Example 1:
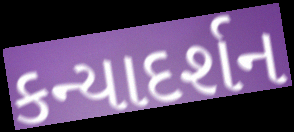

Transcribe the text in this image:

કન્યાદર્શન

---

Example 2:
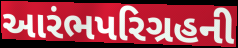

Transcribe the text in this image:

આરંભપરિગ્રહની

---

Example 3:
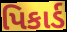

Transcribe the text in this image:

પિકાર્ડ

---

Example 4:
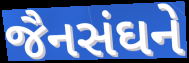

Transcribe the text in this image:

જૈનસંઘને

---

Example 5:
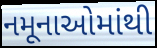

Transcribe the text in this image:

નમૂનાઓમાંથી